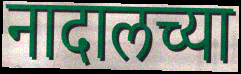
नादालच्या